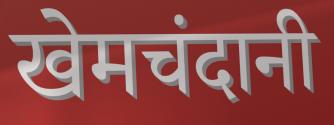
खेमचंदानी